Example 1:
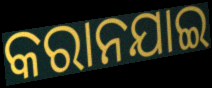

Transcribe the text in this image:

କରାନଯାଇ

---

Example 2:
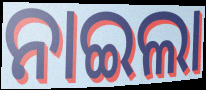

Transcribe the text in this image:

ନାଇଲା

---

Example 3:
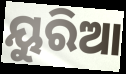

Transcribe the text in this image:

ୟୁରିଆ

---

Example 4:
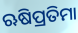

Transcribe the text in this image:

ଋଷିପ୍ରତିମା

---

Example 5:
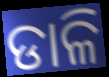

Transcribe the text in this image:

ଡାଳି